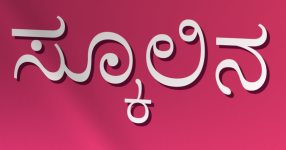
ಸ್ಕೂಲಿನ